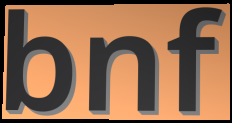
bnf